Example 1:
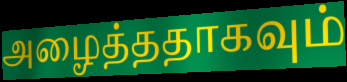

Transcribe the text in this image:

அழைத்ததாகவும்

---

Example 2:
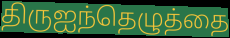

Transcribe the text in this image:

திருஐந்தெழுத்தை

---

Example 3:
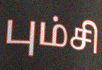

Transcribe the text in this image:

பும்சி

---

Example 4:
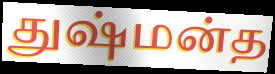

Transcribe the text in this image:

துஷ்மன்த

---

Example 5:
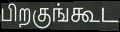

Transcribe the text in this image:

பிறகுங்கூட